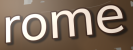
rome